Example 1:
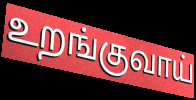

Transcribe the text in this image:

உறங்குவாய்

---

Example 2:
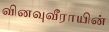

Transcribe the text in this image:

வினவுவீராயின்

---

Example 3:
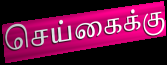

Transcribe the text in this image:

செய்கைக்கு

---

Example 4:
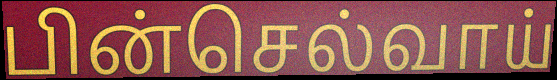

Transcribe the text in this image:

பின்செல்வாய்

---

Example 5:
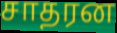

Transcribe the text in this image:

சாதரன